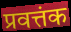
प्रवत्तंक